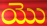
యొ